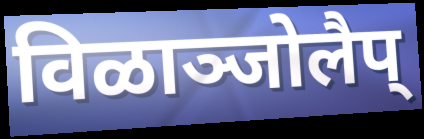
विळाञ्जोलैप्